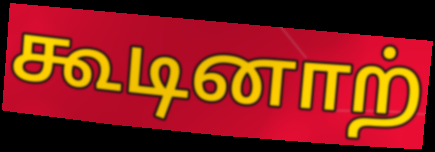
கூடினாற்